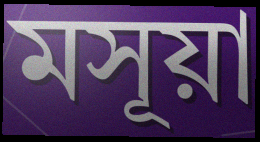
মসূয়া